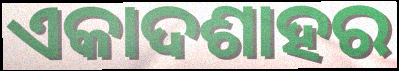
ଏକାଦଶାହର